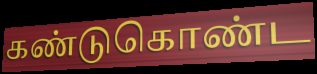
கண்டுகொண்ட